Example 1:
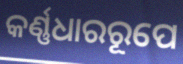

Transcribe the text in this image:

କର୍ଣ୍ଣଧାରରୂପେ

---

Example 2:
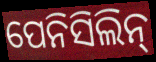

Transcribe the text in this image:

ପେନିସିଲିନ୍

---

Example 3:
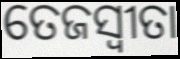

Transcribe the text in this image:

ତେଜସ୍ଵୀତା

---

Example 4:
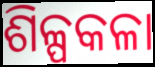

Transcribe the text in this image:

ଶିଳ୍ପକଳା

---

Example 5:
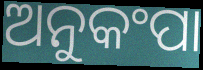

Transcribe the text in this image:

ଅନୁକଂପା